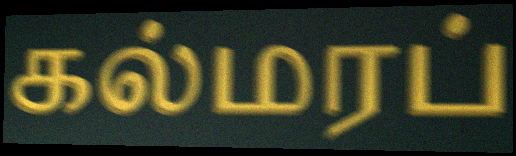
கல்மரப்